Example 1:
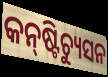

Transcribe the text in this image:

କନ୍‍ଷ୍ଟିଚ୍ୟୁସନ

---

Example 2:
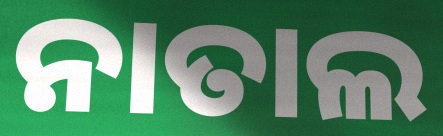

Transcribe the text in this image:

ନାତାଲ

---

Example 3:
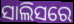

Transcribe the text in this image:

ସାଲିସରେ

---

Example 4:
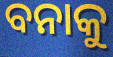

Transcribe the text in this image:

ବନାକୁ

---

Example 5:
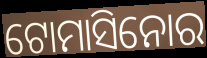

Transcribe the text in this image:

ଟୋମାସିନୋର